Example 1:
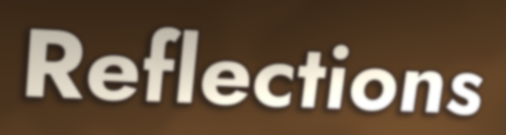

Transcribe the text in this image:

Reflections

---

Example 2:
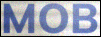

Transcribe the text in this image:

MOB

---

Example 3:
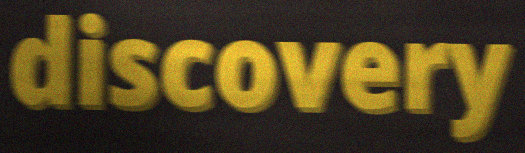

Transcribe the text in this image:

discovery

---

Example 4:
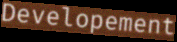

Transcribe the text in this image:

Developement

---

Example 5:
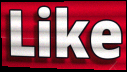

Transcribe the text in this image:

Like